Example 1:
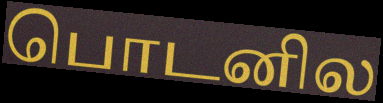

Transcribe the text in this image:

பொடனில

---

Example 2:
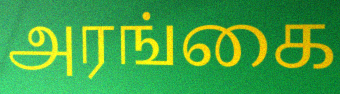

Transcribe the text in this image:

அரங்கை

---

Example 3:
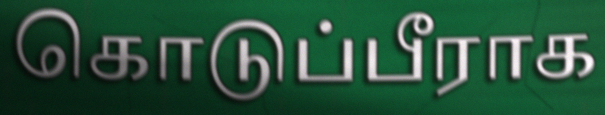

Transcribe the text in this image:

கொடுப்பீராக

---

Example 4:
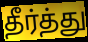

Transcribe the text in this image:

தீர்த்து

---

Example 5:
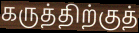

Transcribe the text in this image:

கருத்திற்குத்